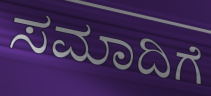
ಸಮಾದಿಗೆ